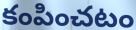
కంపించటం